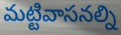
మట్టివాసనల్ని